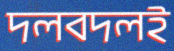
দলবদলই